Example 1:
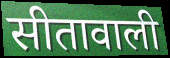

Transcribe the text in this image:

सीतावाली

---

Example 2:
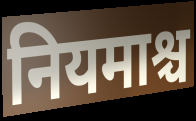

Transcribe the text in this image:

नियमाश्च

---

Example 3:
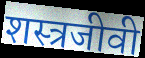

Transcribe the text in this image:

शस्त्रजीवी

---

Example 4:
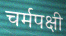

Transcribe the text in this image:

चर्मपक्षी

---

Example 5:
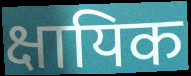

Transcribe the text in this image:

क्षायिक